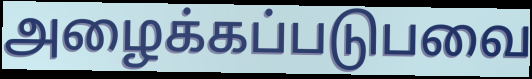
அழைக்கப்படுபவை